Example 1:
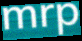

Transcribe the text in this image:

mrp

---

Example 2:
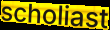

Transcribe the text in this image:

scholiast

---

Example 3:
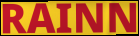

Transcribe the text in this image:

RAINN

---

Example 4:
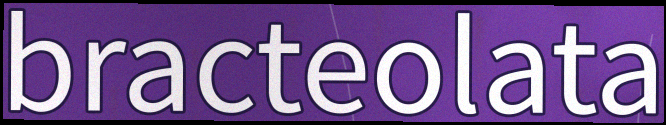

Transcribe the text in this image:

bracteolata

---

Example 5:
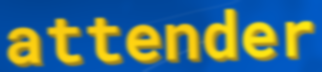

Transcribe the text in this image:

attender